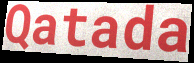
Qatada